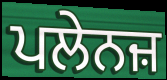
ਪਲੇਨਜ਼